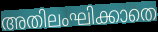
അതിലംഘിക്കാതെ